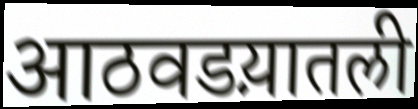
आठवडय़ातली